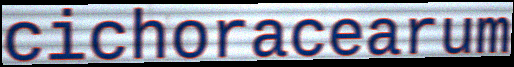
cichoracearum